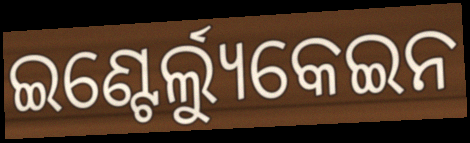
ଇଣ୍ଟେର୍ଲ୍ୟୁକେଇନ